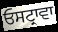
ਓਸਟ੍ਰਾਵਾ